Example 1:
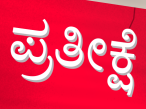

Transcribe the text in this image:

ಪ್ರತೀಕ್ಷೆ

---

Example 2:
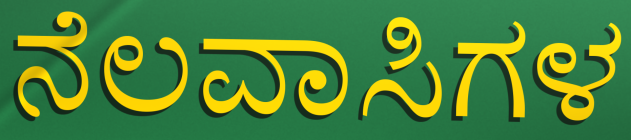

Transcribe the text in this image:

ನೆಲವಾಸಿಗಳ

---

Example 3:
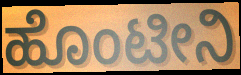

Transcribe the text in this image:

ಹೊಂಟೀನಿ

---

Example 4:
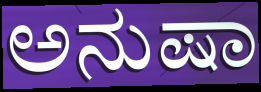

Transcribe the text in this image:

ಅನುಷಾ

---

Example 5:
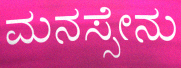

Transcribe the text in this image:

ಮನಸ್ಸೇನು